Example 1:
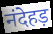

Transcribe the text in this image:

नंदेहड़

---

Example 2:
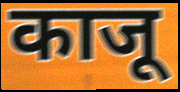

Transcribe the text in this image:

काजू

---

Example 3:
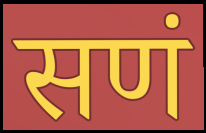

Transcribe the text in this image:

सणं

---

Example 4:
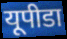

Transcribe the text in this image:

यूपीडा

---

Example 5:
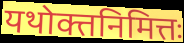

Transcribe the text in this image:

यथोक्तनिमित्तः